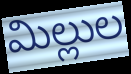
మిల్లుల